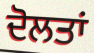
ਦੋਲਤਾਂ